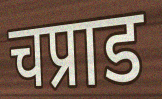
चप्राड